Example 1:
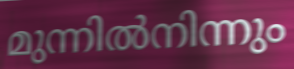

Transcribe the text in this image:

മുന്നിൽനിന്നും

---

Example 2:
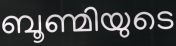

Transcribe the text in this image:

ബൂണ്മിയുടെ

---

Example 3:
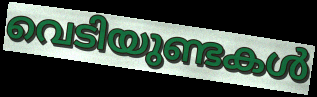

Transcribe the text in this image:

വെടിയുണ്ടകൾ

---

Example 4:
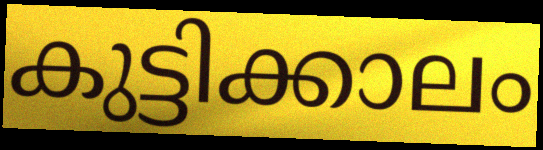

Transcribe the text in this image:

കുട്ടിക്കാലം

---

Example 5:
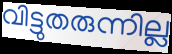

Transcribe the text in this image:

വിട്ടുതരുന്നില്ല